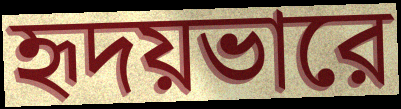
হৃদয়ভারে